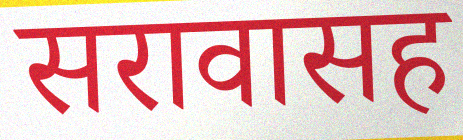
सरावासह